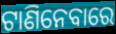
ଟାଣିନେବାରେ